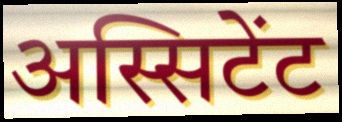
अस्सिटेंट